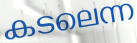
കടലെന്ന